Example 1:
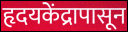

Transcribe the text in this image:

हृदयकेंद्रापासून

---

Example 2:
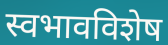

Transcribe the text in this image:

स्वभावविशेष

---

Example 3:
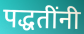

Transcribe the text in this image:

पद्धतींनी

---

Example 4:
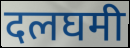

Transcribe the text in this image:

दलघमी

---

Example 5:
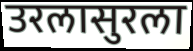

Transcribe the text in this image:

उरलासुरला